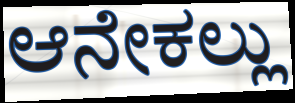
ಆನೇಕಲ್ಲು